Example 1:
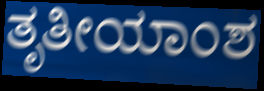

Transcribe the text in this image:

ತೃತೀಯಾಂಶ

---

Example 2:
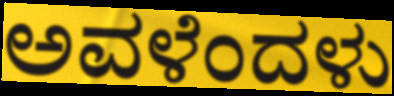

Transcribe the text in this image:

ಅವಳೆಂದಳು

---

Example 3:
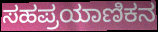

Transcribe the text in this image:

ಸಹಪ್ರಯಾಣಿಕನ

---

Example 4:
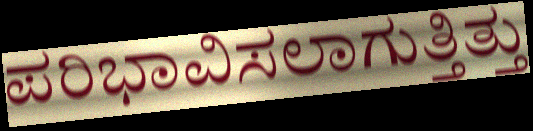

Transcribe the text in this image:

ಪರಿಭಾವಿಸಲಾಗುತ್ತಿತ್ತು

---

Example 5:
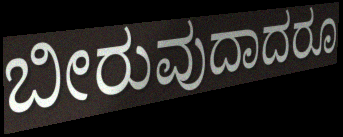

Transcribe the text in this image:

ಬೀರುವುದಾದರೂ